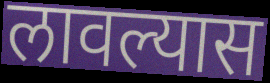
लावल्यास